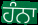
ਹੰਨਾ